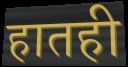
हातही